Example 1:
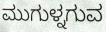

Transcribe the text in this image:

ಮುಗುಳ್ನಗುವ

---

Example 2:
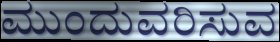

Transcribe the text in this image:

ಮುಂದುವರಿಸುವ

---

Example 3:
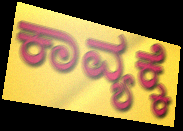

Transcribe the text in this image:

ಕಾವ್ಯಕ್ಕೆ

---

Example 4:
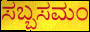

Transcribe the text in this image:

ಸಬ್ಬಸಮಂ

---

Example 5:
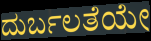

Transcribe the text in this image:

ದುರ್ಬಲತೆಯೇ